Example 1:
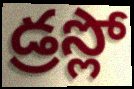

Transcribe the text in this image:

డ్రస్లో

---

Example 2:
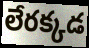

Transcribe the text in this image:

లేరక్కడ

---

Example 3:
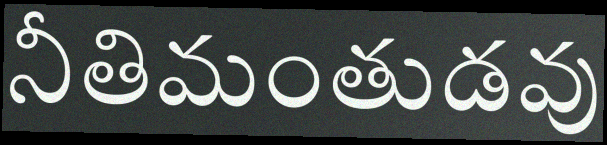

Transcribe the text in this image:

నీతిమంతుడవు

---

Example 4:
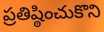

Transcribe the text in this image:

ప్రతిష్ఠించుకొని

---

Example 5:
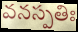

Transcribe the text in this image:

వనస్పతిః